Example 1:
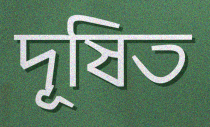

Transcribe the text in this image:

দূষিত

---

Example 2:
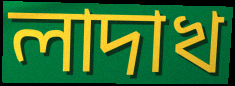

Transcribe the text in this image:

লাদাখ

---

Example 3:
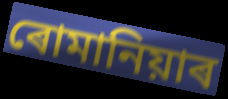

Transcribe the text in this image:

ৰোমানিয়াৰ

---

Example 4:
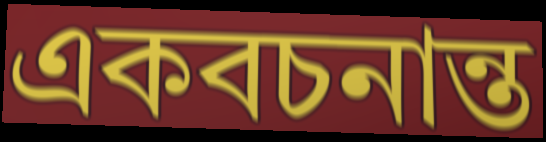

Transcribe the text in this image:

একবচনান্ত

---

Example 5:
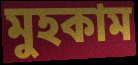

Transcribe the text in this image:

মুহকাম